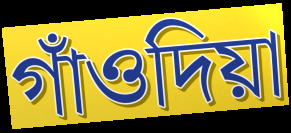
গাঁওদিয়া